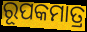
ରୂପକମାତ୍ର